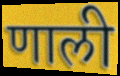
णाली